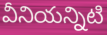
వీనియన్నిటి